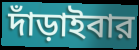
দাঁড়াইবার